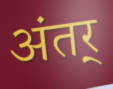
अंतर्